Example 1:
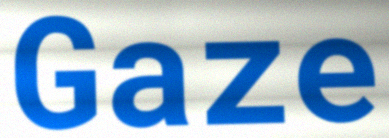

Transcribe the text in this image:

Gaze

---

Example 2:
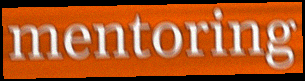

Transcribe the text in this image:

mentoring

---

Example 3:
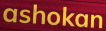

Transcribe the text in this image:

ashokan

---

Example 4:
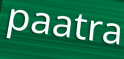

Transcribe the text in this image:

paatra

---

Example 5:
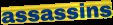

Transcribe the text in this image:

assassins